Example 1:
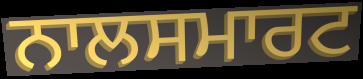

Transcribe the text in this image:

ਨਾਲਸਮਾਰਟ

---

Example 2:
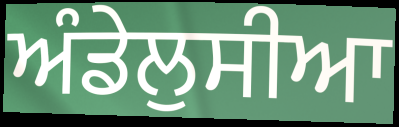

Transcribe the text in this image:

ਅੰਡੇਲੁਸੀਆ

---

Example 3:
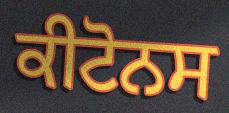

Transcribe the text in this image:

ਕੀਟੋਨਸ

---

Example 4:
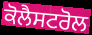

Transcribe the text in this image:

ਕੋਲੈਸਟਰੋਲ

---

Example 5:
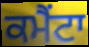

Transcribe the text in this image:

ਕਮੈਂਟਾ